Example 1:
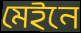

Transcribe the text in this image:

মেইনে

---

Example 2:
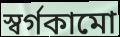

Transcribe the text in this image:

স্বর্গকামো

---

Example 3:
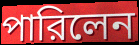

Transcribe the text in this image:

পারিলেন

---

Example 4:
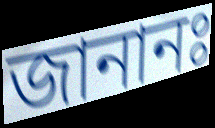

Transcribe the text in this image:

জানানঃ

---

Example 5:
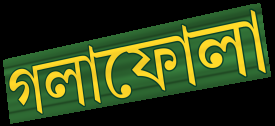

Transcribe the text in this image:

গলাফোলা